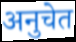
अनुचेत